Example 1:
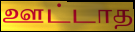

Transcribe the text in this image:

ஊட்டாத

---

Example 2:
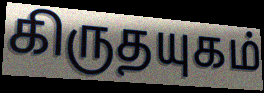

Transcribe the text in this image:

கிருதயுகம்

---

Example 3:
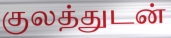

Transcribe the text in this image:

குலத்துடன்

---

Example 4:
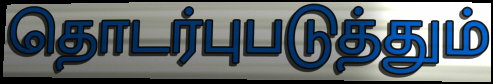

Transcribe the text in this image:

தொடர்புபடுத்தும்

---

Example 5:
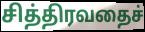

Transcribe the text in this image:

சித்திரவதைச்